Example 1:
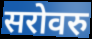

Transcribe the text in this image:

सरोवरु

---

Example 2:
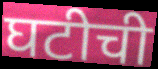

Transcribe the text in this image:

घटीची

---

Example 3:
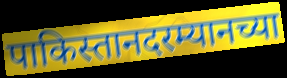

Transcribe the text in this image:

पाकिस्तानदरम्यानच्या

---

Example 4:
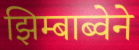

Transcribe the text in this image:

झिम्बाब्वेने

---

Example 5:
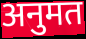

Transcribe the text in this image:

अनुमत